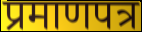
प्रमाणपत्र